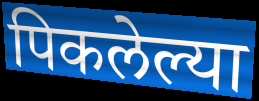
पिकलेल्या